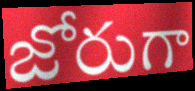
జోరుగా